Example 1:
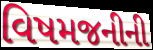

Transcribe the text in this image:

વિષમજનીની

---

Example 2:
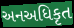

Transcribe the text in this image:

અનઅધિકૃત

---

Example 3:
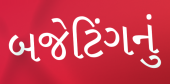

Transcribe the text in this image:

બજેટિંગનું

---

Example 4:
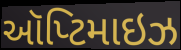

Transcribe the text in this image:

ઑપ્ટિમાઇઝ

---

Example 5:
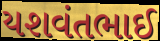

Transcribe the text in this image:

યશવંતભાઈ